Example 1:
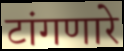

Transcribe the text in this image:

टांगणारे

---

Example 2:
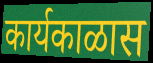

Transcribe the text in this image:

कार्यकाळास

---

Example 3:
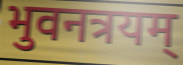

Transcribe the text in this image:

भुवनत्रयम्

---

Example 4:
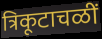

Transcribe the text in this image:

त्रिकूटाचळीं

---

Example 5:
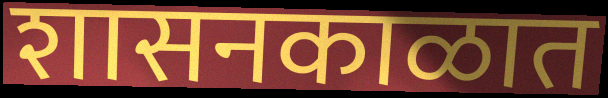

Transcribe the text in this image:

शासनकाळात